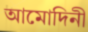
আমোদিনী